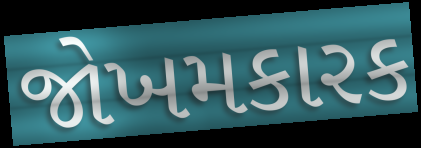
જોખમકારક